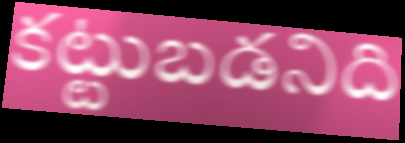
కట్టుబడనిది